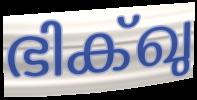
ഭിക്ഖു